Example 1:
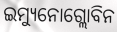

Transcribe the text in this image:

ଇମ୍ୟୁନୋଗ୍ଲୋବିନ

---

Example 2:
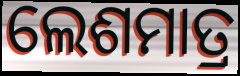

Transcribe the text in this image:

ଲେଶମାତ୍ର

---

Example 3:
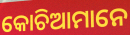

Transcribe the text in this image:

କୋଚିଆମାନେ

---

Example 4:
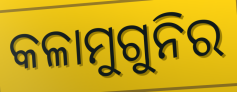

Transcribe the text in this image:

କଳାମୁଗୁନିର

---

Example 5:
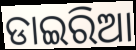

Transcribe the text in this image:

ଡାଇରିଆ